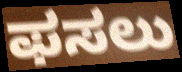
ಫಸಲು